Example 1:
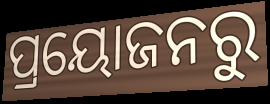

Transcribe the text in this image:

ପ୍ରୟୋଜନରୁ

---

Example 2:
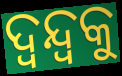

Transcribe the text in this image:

ଦ୍ୱନ୍ଦ୍ୱକୁ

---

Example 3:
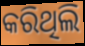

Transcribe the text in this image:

କରିଥିଲି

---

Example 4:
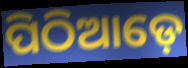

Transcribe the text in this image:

ପିଠିଆଡ଼େ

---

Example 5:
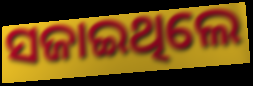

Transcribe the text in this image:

ସଜାଇଥିଲେ